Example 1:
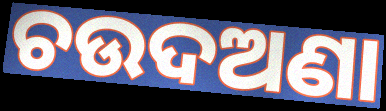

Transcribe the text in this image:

ଚଉଦଅଣା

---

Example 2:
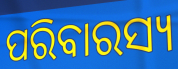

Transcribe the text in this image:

ପରିବାରସ୍ୟ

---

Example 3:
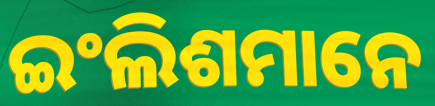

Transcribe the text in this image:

ଇଂଲିଶମାନେ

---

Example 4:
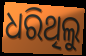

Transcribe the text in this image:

ଧରିଥିଲୁ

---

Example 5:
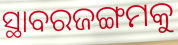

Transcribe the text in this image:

ସ୍ଥାବରଜଙ୍ଗମକୁ